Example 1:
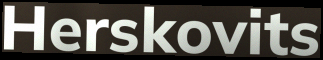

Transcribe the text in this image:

Herskovits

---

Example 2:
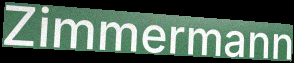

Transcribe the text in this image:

Zimmermann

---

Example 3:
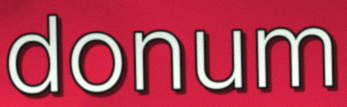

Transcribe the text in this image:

donum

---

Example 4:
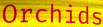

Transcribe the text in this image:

Orchids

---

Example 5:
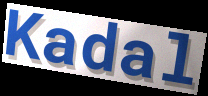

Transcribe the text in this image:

Kadal